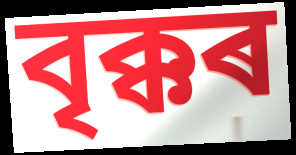
বৃক্কৰ